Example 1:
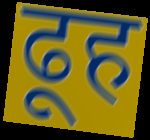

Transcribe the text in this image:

ढूह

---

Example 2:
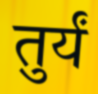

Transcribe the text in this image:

तुर्यं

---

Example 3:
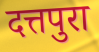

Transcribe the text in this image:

दत्तपुरा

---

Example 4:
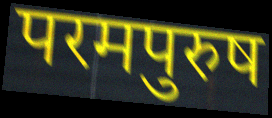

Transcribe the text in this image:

परमपुरुष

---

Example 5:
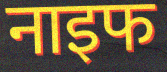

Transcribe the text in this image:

नाइफ